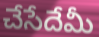
చేసేదేమీ